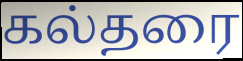
கல்தரை